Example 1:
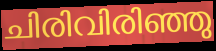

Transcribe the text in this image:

ചിരിവിരിഞ്ഞു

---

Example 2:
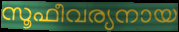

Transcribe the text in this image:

സൂഫീവര്യനായ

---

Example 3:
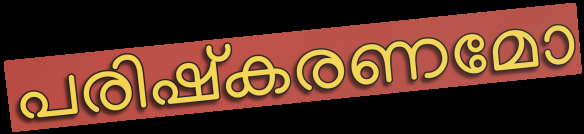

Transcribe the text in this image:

പരിഷ്കരണമോ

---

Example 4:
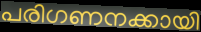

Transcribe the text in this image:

പരിഗണനക്കായി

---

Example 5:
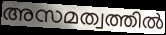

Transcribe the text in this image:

അസമത്വത്തിൽ